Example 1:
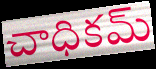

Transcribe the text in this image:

చాధికమ్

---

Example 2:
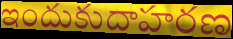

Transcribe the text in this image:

ఇందుకుదాహరణ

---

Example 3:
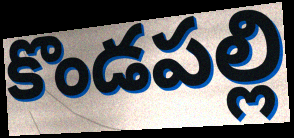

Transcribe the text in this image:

కొండపల్లి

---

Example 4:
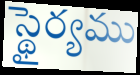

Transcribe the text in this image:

స్థైర్యము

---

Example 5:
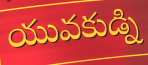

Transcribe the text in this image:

యువకుడ్ని